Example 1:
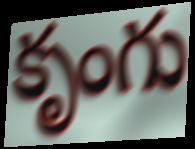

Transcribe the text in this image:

కృంగు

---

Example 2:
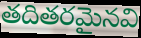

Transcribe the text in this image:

తదితరమైనవి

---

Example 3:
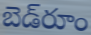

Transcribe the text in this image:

బెడ్‌రూం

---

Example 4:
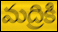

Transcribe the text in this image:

మద్రికి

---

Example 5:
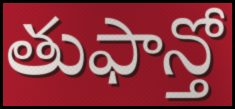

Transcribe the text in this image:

తుఫాన్తో